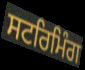
ਸਟਰਿਮਿੰਗ